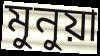
মুনুয়া